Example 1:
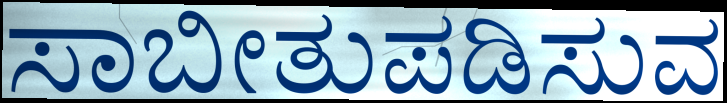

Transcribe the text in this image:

ಸಾಬೀತುಪಡಿಸುವ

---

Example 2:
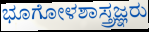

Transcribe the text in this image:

ಭೂಗೋಳಶಾಸ್ತ್ರಜ್ಞರು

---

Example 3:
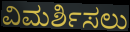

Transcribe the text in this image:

ವಿಮರ್ಶಿಸಲು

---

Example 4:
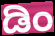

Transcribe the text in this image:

ಡಿಂ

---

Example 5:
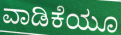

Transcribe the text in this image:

ವಾಡಿಕೆಯೂ